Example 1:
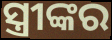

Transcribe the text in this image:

ସ୍ତ୍ରୀଙ୍କର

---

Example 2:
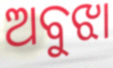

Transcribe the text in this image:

ଅବୁଝା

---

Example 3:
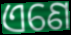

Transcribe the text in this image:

ଏଣେ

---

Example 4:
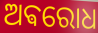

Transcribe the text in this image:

ଅଵରୋଧ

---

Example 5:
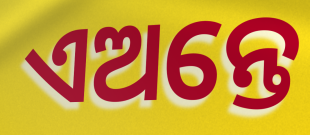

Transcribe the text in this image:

ଏଅନ୍ତେ